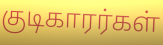
குடிகாரர்கள்